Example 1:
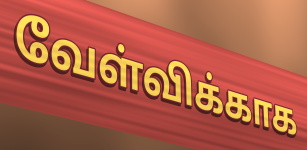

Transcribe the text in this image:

வேள்விக்காக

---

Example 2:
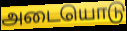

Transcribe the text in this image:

அடையொடு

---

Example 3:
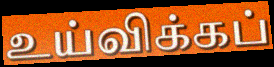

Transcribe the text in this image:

உய்விக்கப்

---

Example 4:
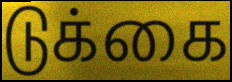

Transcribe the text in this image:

டுக்கை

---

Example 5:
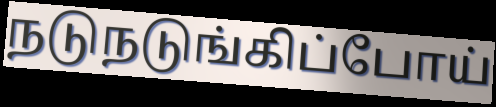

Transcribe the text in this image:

நடுநடுங்கிப்போய்